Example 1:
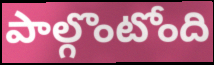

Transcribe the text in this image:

పాల్గొంటోంది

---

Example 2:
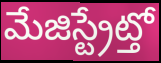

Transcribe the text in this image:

మేజిస్ట్రేట్తో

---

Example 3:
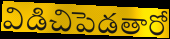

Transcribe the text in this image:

విడిచిపెడతారో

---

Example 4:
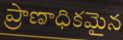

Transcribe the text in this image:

ప్రాణాధికమైన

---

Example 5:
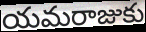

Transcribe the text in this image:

యమరాజుకు